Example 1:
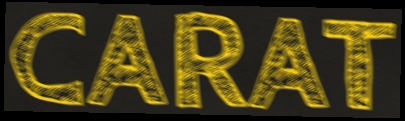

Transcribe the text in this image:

CARAT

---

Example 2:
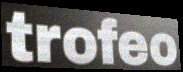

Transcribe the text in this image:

trofeo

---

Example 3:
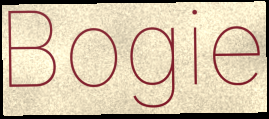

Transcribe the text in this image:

Bogie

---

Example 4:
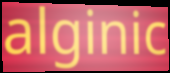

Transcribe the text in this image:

alginic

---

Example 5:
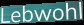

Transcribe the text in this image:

Lebwohl